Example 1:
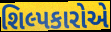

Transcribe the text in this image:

શિલ્પકારોએ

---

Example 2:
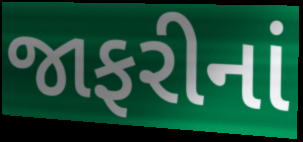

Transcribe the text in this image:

જાફરીનાં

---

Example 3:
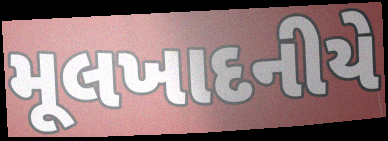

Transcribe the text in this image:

મૂલખાદનીયે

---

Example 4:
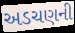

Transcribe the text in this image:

અડચણની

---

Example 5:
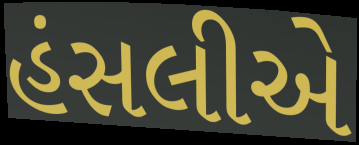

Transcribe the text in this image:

હંસલીએ